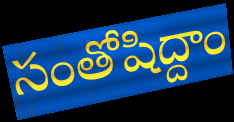
సంతోషిద్దాం